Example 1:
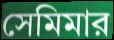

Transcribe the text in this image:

সেমিমার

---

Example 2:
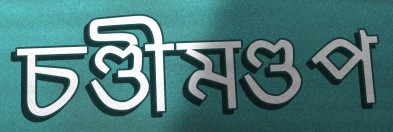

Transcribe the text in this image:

চণ্ডীমণ্ডপ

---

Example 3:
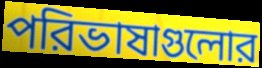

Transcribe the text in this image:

পরিভাষাগুলোর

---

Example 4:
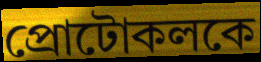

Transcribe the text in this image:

প্রোটোকলকে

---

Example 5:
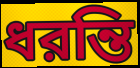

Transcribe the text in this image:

ধরন্তি